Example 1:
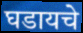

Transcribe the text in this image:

घडायचे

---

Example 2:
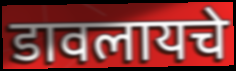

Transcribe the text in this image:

डावलायचे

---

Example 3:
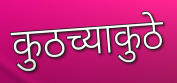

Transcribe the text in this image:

कुठच्याकुठे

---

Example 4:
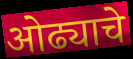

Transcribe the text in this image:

ओढ्याचे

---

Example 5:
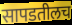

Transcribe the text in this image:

सापडतीलच